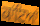
ਕਾਂਇਆਂ